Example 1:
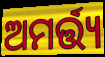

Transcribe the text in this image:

ଅମର୍ତ୍ତ୍ୟ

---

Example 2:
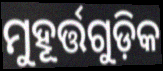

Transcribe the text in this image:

ମୁହୂର୍ତ୍ତଗୁଡ଼ିକ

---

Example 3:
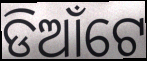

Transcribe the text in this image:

ଡିଆଁଟେ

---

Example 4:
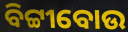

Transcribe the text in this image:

ବିଟ୍ଟୀବୋଉ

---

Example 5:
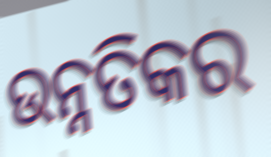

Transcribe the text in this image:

ଉନ୍ନତିକର